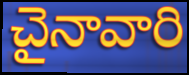
చైనావారి